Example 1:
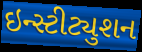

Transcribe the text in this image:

ઇન્સ્ટીટ્યુશન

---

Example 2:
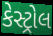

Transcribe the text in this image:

કેસ્ટ્રોલ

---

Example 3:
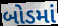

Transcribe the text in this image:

બોડમાં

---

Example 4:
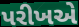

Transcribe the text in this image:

પરીખએ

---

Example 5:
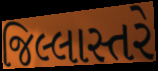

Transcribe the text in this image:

જિલ્લાસ્તરે